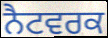
ਨੈਟਵਰਕ